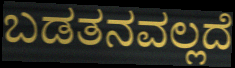
ಬಡತನವಲ್ಲದೆ